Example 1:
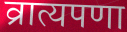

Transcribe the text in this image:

व्रात्यपणा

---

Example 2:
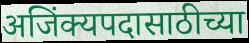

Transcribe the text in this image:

अजिंक्यपदासाठीच्या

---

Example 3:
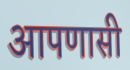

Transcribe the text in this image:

आपणासी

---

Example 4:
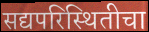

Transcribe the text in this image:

सद्यपरिस्थितीचा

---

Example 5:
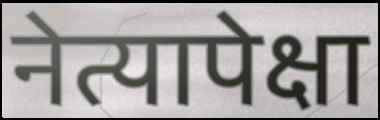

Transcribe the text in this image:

नेत्यापेक्षा